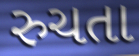
રુચતા